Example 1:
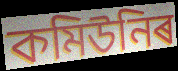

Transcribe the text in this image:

কমিউনিৰ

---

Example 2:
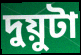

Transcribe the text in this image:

দুয়ুটা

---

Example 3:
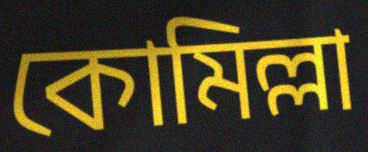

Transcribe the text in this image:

কোমিল্লা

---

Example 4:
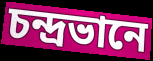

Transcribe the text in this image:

চন্দ্ৰভানে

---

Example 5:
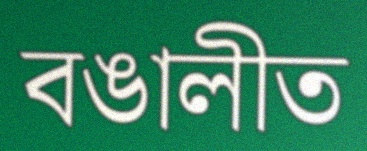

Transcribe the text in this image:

বঙালীত